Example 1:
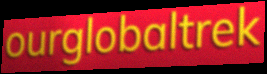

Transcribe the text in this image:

ourglobaltrek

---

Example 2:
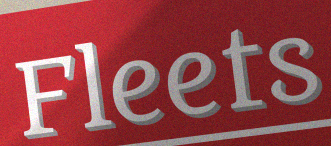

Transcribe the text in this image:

Fleets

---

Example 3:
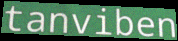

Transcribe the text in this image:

tanviben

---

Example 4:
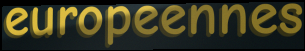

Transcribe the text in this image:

europeennes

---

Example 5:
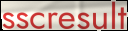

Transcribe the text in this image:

sscresult